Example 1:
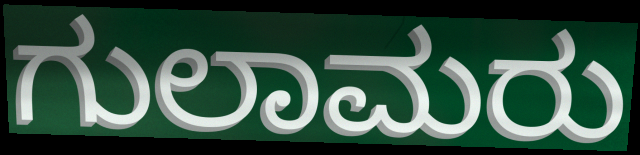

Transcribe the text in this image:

ಗುಲಾಮರು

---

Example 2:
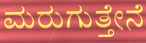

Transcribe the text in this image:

ಮರುಗುತ್ತೇನೆ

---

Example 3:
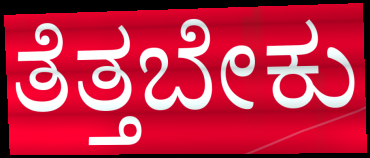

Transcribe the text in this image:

ತೆತ್ತಬೇಕು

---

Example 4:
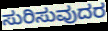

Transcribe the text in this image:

ಸುರಿಸುವುದರ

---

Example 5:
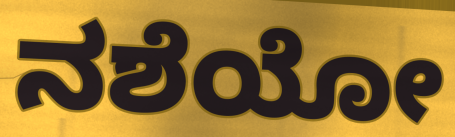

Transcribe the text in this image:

ನಶೆಯೋ